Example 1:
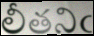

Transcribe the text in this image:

లీతనిఁ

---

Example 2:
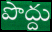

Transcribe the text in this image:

పొద్దు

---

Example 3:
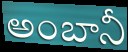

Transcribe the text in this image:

అంబానీ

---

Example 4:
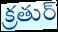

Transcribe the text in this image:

క్రతుర్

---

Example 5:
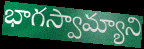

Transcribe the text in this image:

భాగస్వామ్యాని